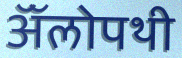
ॲॅलोपथी